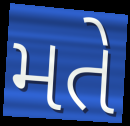
મતે